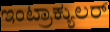
ಇಂಟ್ರಾಕ್ಯುಲರ್